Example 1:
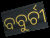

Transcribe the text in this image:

ବବୁର୍ଚୀ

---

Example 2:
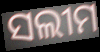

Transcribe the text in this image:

ସଲୀମ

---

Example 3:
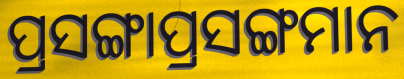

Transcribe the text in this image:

ପ୍ରସଙ୍ଗାପ୍ରସଙ୍ଗମାନ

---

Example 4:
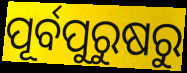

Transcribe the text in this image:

ପୂର୍ବପୁରୁଷରୁ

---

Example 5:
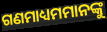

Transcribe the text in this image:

ଗଣମାଧ୍ୟମମାନଙ୍କୁ